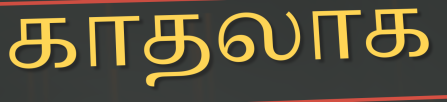
காதலாக